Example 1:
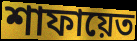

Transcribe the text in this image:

শাফায়েত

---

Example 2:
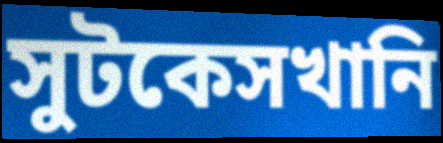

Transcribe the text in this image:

সুটকেসখানি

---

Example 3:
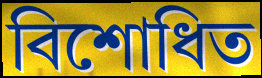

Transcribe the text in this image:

বিশোধিত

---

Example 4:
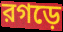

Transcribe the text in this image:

রগড়ে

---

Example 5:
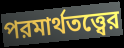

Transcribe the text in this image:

পরমার্থতত্ত্বের